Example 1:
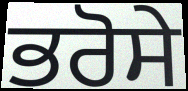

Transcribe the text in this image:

ਭਰੋਸੇ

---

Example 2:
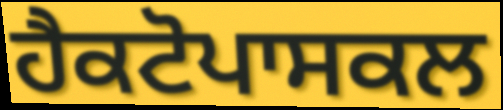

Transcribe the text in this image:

ਹੈਕਟੋਪਾਸਕਲ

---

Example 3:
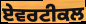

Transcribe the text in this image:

ਏਵਰਟੀਕਲ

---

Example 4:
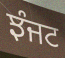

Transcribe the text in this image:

ਝੰਜਟ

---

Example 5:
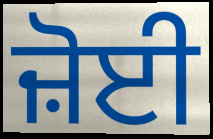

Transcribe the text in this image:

ਜ਼ੋਈ